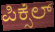
ಪಿಕ್ಸೆಲ್